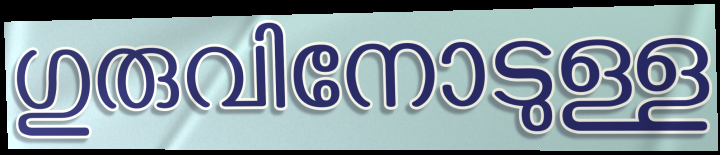
ഗുരുവിനോടുള്ള